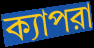
ক্যাপরা